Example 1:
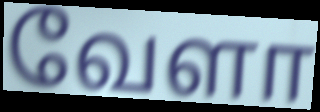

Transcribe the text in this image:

வேளா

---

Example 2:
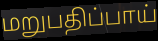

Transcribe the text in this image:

மறுபதிப்பாய்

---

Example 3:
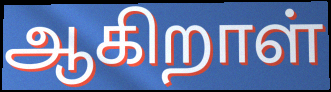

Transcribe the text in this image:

ஆகிறாள்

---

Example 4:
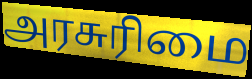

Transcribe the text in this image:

அரசுரிமை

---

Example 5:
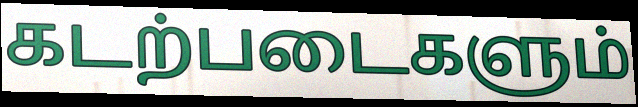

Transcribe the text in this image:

கடற்படைகளும்